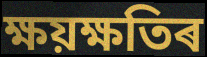
ক্ষয়ক্ষতিৰ